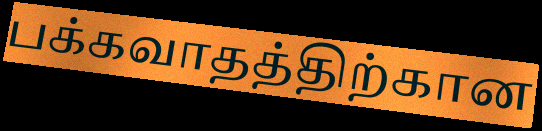
பக்கவாதத்திற்கான